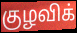
குழவிக்